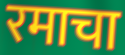
रमाचा